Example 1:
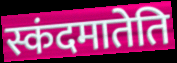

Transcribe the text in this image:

स्कंदमातेति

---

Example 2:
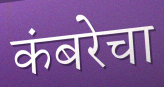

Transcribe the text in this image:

कंबरेचा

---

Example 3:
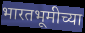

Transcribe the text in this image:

भारतभूमीच्या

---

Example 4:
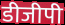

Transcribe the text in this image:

डीजीपी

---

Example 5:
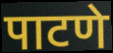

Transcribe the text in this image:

पाटणे